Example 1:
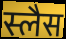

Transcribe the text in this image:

स्लैस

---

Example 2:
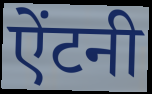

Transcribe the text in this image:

ऐंटनी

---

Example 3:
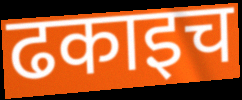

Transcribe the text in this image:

ढकाइच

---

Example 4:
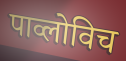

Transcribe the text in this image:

पाव्लोविच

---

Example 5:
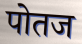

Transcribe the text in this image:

पोतज